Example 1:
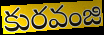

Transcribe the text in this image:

కురవంజి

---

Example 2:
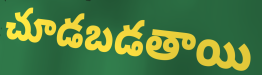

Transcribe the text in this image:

చూడబడతాయి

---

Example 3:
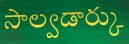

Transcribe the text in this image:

సాల్వడార్కు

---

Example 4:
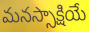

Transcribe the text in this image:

మనస్సాక్షియే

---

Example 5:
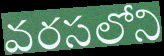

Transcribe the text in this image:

వరసలోని